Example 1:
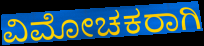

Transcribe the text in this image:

ವಿಮೋಚಕರಾಗಿ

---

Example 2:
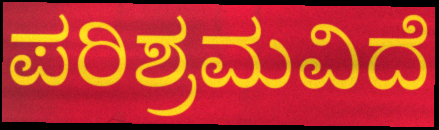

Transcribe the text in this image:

ಪರಿಶ್ರಮವಿದೆ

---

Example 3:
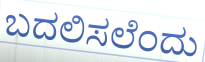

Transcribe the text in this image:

ಬದಲಿಸಲೆಂದು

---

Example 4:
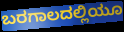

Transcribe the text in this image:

ಬರಗಾಲದಲ್ಲಿಯೂ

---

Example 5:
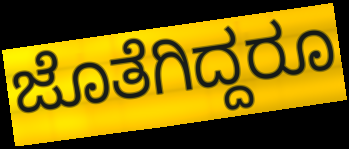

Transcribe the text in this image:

ಜೊತೆಗಿದ್ದರೂ